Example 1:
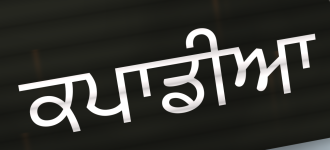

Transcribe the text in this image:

ਕਪਾਡੀਆ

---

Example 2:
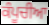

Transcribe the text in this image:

ਕੰਪੂਚੀਆ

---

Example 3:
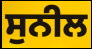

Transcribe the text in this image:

ਸੁਨੀਲ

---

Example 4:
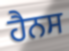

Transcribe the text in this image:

ਹੈਨਸ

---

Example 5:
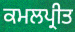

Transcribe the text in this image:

ਕਮਲਪ੍ਰੀਤ